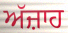
ਅੱਜ਼ਾਹ